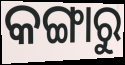
କଙ୍ଗାରୁ